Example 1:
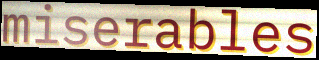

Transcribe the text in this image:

miserables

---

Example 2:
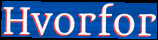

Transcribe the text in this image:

Hvorfor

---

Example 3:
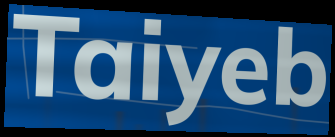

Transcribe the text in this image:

Taiyeb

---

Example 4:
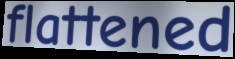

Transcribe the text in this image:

flattened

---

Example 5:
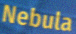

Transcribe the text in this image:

Nebula